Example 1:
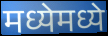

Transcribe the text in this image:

मध्येमध्ये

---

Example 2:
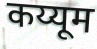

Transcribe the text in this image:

कय्यूम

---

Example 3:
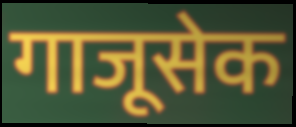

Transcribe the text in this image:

गाजूसेक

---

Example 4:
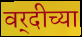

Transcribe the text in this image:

वर्दीच्या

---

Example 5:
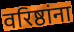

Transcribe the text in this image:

वरिष्ठांना